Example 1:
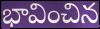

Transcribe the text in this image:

భావించిన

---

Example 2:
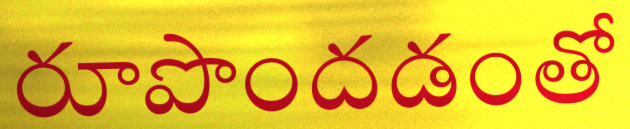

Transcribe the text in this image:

రూపొందడంతో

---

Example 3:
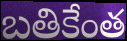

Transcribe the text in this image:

బతికేంత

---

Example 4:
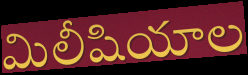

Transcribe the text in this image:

మిలీషియాల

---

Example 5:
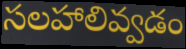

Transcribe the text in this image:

సలహాలివ్వడం